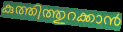
കുത്തിത്തുറക്കാൻ